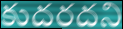
కుదరదని